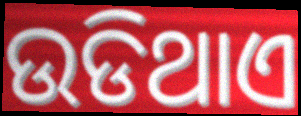
ଉଡିଥାଏ